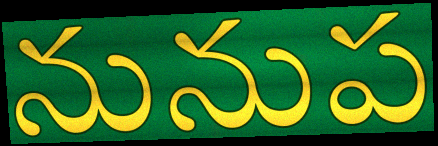
నునుప